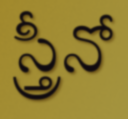
స్త్రీనో